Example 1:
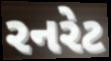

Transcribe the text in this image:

રનરેટ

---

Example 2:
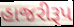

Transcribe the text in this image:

હાજરીરૂપ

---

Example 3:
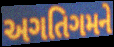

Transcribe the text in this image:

અગતિગમને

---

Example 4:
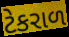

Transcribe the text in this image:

ટેકરાળ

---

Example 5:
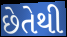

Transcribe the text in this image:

છેતેથી